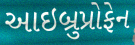
આઇબ્રુપ્રોફેન